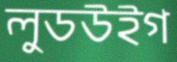
লুডউইগ